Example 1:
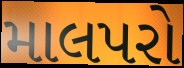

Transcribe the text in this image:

માલપરો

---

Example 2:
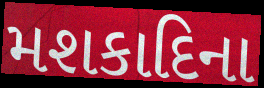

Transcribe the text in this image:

મશકાદિના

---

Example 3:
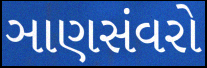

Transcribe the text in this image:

ઞાણસંવરો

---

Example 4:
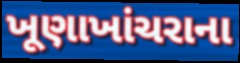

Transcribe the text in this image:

ખૂણાખાંચરાના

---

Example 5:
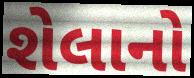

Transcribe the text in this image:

શેલાનો